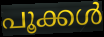
പൂക്കൾ